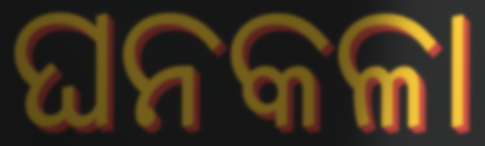
ଘନକଳା